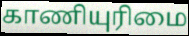
காணியுரிமை